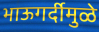
भाऊगर्दीमुळे